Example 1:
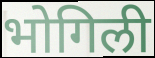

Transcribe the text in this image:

भोगिली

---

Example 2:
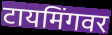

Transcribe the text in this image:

टायमिंगवर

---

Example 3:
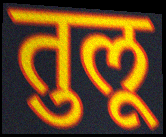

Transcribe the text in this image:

तुलू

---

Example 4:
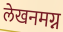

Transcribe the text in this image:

लेखनमग्न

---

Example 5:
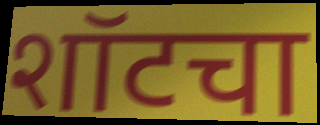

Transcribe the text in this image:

शॉटचा